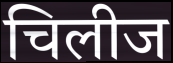
चिलीज